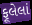
ફૂલેલાં